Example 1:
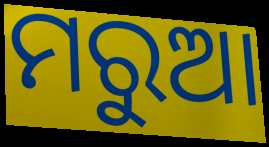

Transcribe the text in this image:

ମରୁଆ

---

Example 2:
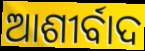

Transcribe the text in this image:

ଆଶୀର୍ବାଦ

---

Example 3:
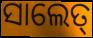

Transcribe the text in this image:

ସାଲେତ୍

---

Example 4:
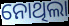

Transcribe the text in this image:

ନୋଥିଲା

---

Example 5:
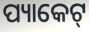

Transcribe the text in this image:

ପ୍ୟାକେଟ୍